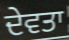
ਦੇਵਤਾ